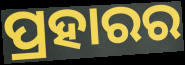
ପ୍ରହାରର